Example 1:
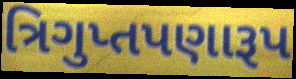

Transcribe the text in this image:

ત્રિગુપ્તપણારૂપ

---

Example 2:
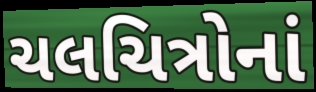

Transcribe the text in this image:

ચલચિત્રોનાં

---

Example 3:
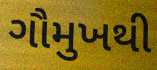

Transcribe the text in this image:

ગૌમુખથી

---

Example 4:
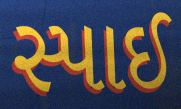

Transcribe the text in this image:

સ્પાઈ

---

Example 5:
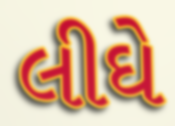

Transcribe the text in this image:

લીઘે